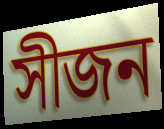
সীজন